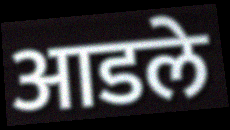
आडले